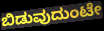
ಬಿಡುವುದುಂಟೇ